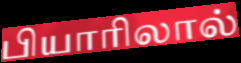
பியாரிலால்